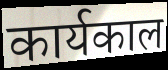
कार्यकाल